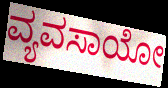
ವ್ಯವಸಾಯೋ